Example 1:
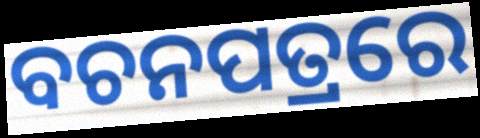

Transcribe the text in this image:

ବଚନପତ୍ରରେ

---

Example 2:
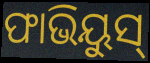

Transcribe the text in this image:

ଫାଭିୟୁସ୍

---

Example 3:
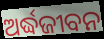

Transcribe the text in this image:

ଅର୍ଦ୍ଧଜୀବନ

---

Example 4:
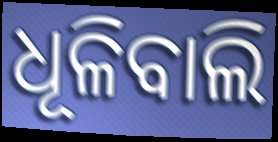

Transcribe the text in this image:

ଧୂଳିବାଲି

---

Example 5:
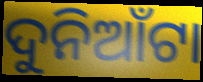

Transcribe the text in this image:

ଦୁନିଆଁଟା